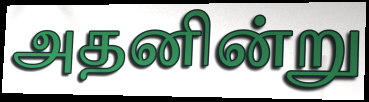
அதனின்று